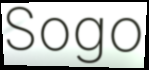
Sogo